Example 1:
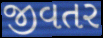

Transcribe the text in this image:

જીવતર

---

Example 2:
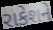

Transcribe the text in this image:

રાકેશને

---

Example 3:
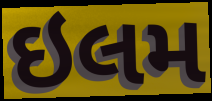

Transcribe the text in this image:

ઇલમ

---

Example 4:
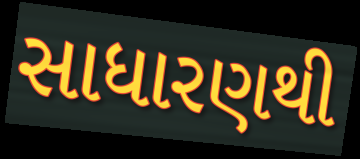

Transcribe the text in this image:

સાધારણથી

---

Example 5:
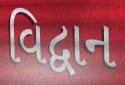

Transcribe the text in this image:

વિદ્વાન